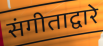
संगीताद्वारे